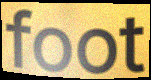
foot